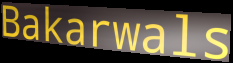
Bakarwals